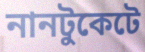
নানটুকেটে